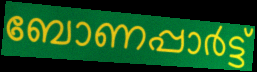
ബോണപ്പാർട്ട്